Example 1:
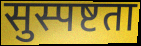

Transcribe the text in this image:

सुस्पष्टता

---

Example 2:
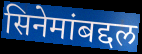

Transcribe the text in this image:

सिनेमांबद्दल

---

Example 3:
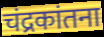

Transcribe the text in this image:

चंद्रकांतना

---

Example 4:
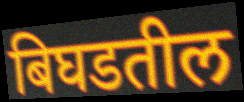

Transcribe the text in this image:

बिघडतील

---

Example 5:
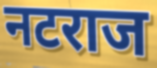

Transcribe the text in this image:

नटराज